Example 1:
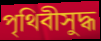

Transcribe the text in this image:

পৃথিবীসুদ্ধ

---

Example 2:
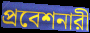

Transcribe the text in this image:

প্রবেশনারী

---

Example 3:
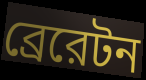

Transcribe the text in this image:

ব্রেরেটন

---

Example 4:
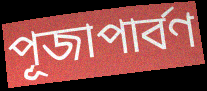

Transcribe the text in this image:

পূজাপার্বণ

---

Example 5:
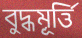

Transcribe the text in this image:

বুদ্ধমূর্ত্তি